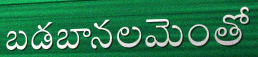
బడబానలమెంతో